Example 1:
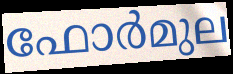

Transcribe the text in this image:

ഫോർമുല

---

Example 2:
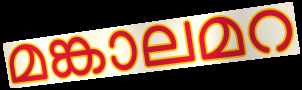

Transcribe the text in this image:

മങ്കാലമറ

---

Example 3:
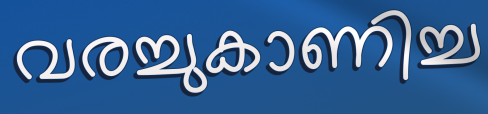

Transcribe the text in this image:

വരച്ചുകാണിച്ച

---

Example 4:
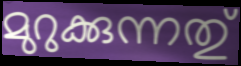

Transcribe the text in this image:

മുറുക്കുന്നതു്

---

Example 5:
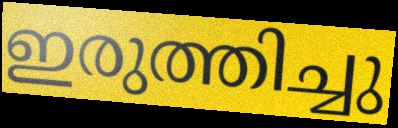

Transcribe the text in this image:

ഇരുത്തിച്ചു